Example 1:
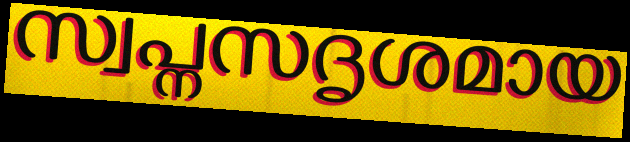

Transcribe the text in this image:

സ്വപ്നസദൃശമായ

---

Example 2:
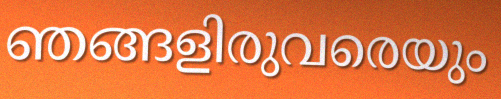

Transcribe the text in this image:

ഞങ്ങളിരുവരെയും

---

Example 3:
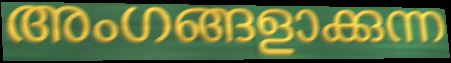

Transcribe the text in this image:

അംഗങ്ങളാക്കുന്ന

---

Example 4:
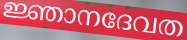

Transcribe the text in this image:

ജ്ഞാനദേവത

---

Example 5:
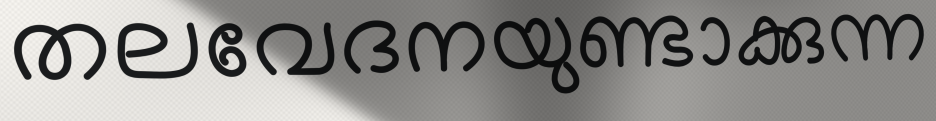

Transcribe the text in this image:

തലവേദനയുണ്ടാക്കുന്ന